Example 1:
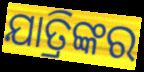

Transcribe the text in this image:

ଯାତ୍ରିଙ୍କର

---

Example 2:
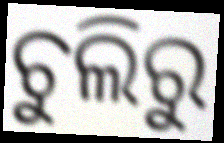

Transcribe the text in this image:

ଚୁଲିରୁ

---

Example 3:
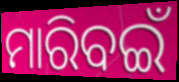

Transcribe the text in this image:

ମାରିବଇଁ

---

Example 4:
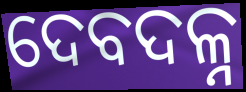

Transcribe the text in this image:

ଦେବଦଳ୍ନ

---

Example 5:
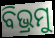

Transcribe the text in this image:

ବିଭ୍ରମୁ